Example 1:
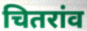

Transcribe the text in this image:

चितरांव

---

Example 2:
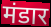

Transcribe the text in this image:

मंडार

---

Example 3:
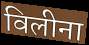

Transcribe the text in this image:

विलीना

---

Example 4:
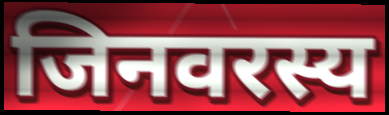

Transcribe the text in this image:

जिनवरस्य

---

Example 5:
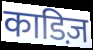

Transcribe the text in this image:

काडिज़